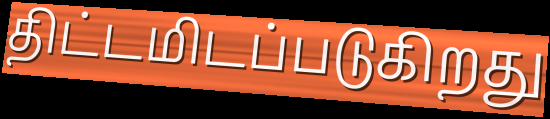
திட்டமிடப்படுகிறது